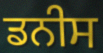
ਡਨੀਸ